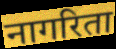
नागरिता